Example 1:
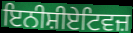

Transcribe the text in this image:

ਇਨੀਸ਼ੀਏਟਿਵਜ਼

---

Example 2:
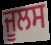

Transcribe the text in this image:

ਜੂਲਸ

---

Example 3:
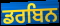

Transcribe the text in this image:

ਡਰਬਿਨ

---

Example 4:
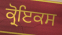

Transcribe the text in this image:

ਕ੍ਰੋਇਕਸ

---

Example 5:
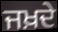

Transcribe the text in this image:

ਜਖ਼ਦੇ